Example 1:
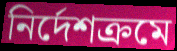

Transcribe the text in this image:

নির্দেশক্রমে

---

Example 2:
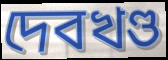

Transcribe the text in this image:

দেবখণ্ড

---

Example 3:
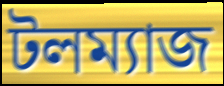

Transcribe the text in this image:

টলম্যাজ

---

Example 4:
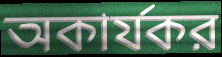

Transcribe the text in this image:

অকার্যকর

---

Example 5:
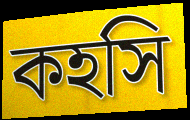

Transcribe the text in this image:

কহসি